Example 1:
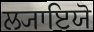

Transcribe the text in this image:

ਲ੍ਯਾਇਯੋ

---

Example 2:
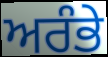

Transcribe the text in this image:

ਅਰੰਭੇ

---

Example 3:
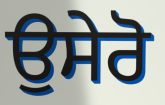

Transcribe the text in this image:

ਉਸੇਰੋ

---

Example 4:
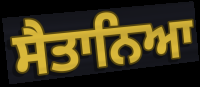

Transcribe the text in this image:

ਸੈਤਾਨਿਆ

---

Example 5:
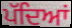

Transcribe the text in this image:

ਪੱਦਿਆਂ